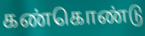
கண்கொண்டு